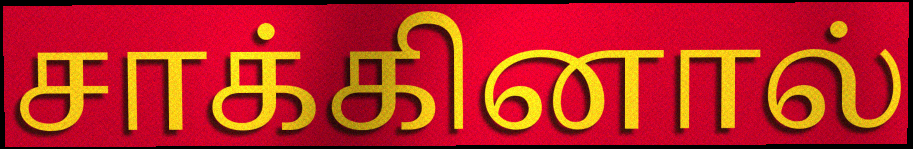
சாக்கினால்